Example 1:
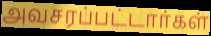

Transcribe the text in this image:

அவசரப்பட்டார்கள்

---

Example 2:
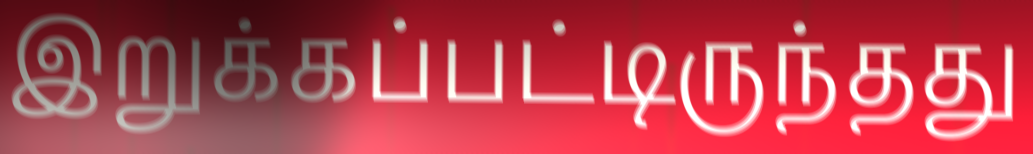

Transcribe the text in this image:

இறுக்கப்பட்டிருந்தது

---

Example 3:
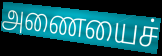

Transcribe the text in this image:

அணையைச்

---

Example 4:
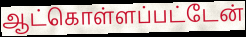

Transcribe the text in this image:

ஆட்கொள்ளப்பட்டேன்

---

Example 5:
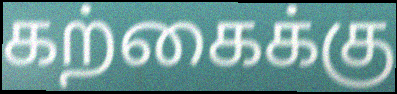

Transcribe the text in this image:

கற்கைக்கு